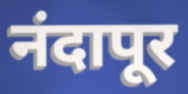
नंदापूर